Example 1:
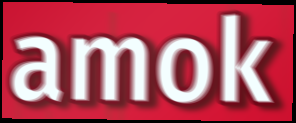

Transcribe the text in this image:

amok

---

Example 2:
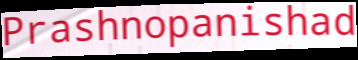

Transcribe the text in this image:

Prashnopanishad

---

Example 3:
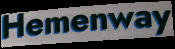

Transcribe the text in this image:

Hemenway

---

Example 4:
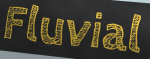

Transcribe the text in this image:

Fluvial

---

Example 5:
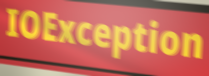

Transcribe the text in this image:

IOException